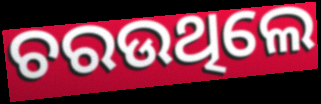
ଚରଉଥିଲେ